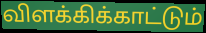
விளக்கிக்காட்டும்